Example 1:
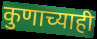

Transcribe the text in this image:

कुणाच्याही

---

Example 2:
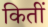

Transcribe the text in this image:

कितीं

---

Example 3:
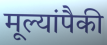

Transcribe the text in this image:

मूल्यांपैकी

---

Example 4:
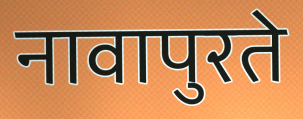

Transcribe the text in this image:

नावापुरते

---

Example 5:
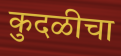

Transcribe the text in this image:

कुदळीचा